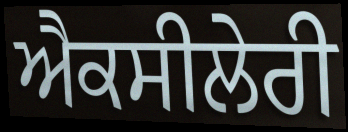
ਐਕਸੀਲੇਰੀ